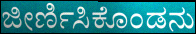
ಜೀರ್ಣಿಸಿಕೊಂಡನು